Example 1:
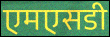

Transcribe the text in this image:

एमएसडी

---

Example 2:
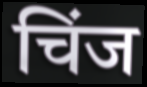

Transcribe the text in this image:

चिंज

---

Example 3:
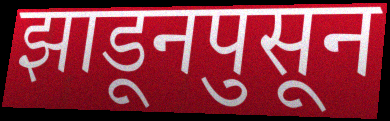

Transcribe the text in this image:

झाडूनपुसून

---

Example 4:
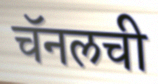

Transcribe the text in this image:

चॅनलची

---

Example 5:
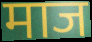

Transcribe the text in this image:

माज